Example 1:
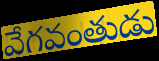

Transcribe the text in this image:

వేగవంతుడు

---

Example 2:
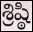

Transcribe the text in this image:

శ్రిష్ఠి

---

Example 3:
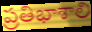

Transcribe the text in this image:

ప్రతిభాశాలి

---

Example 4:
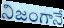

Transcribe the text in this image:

నిజంగానే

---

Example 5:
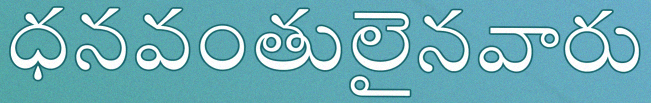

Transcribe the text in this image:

ధనవంతులైనవారు